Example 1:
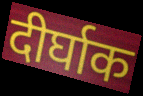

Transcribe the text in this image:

दीर्घाक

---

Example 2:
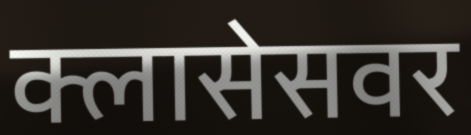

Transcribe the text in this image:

क्लासेसवर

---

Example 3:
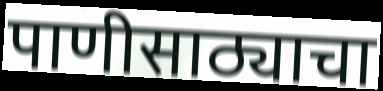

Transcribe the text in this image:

पाणीसाठ्याचा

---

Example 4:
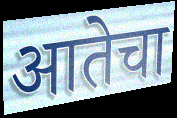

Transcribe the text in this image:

आतेचा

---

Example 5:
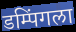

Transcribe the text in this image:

डम्पिंगला